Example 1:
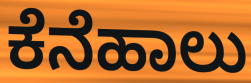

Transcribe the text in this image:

ಕೆನೆಹಾಲು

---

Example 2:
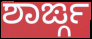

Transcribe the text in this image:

ಶಾರ್ಙ್ಗ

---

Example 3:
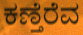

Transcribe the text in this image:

ಕಣ್ತೆರೆವ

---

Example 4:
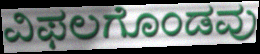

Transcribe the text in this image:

ವಿಫಲಗೊಂಡವು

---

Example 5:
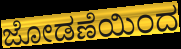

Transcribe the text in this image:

ಜೋಡಣೆಯಿಂದ